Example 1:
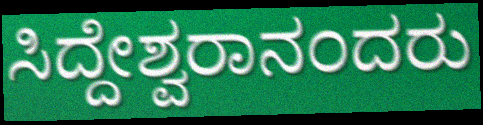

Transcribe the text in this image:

ಸಿದ್ದೇಶ್ವರಾನಂದರು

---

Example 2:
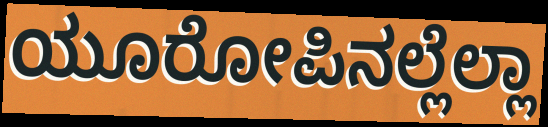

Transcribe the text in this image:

ಯೂರೋಪಿನಲ್ಲೆಲ್ಲಾ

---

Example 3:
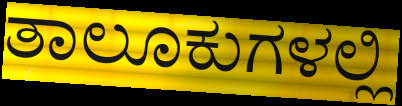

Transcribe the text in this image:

ತಾಲೂಕುಗಳಲ್ಲಿ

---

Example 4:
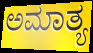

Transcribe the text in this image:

ಅಮಾತ್ಯ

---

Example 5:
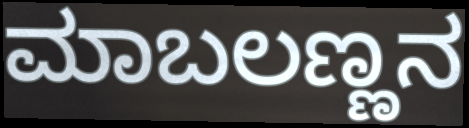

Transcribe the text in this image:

ಮಾಬಲಣ್ಣನ